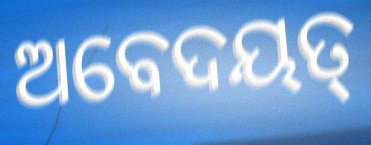
ଅବେଦୟତ୍